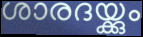
ശാരദയ്ക്കും